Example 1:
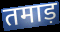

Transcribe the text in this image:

तमाड़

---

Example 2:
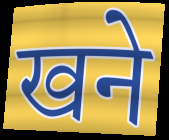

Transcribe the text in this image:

खने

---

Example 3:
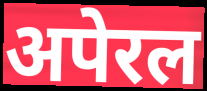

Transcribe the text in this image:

अपेरल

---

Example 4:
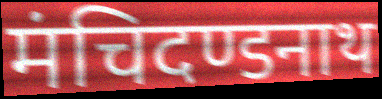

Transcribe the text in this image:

मंचिदण्डनाथ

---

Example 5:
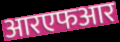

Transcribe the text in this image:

आरएफआर